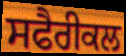
ਸਫੈਰੀਕਲ